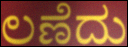
ಲಣೆದು